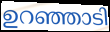
ഉറഞ്ഞാടി